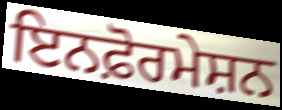
ਇਨਫ਼ੋਰਮੇਸ਼ਨ